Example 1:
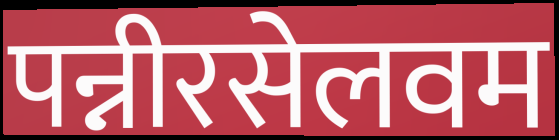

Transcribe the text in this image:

पन्नीरसेलवम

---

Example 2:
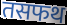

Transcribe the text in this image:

तसफथ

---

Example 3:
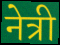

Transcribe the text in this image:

नेत्री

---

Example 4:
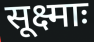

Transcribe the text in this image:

सूक्ष्माः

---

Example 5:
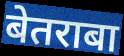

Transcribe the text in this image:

बेतराबा